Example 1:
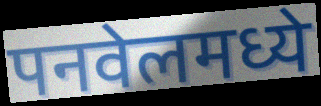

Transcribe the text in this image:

पनवेलमध्ये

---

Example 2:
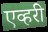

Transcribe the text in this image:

एव्हरी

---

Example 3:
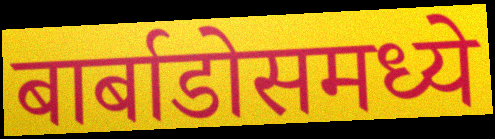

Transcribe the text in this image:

बार्बाडोसमध्ये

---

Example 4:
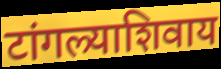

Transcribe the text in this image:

टांगल्याशिवाय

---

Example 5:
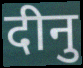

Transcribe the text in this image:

दीनु